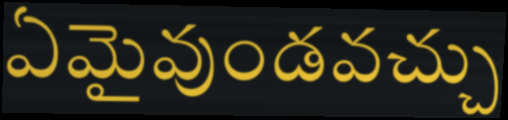
ఏమైవుండవచ్చు